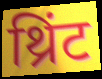
थ्रिंट